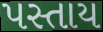
પસ્તાય